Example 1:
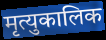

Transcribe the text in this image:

मृत्युकालिक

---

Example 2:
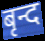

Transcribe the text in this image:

बृन्द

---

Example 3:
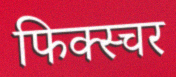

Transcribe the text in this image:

फिक्स्चर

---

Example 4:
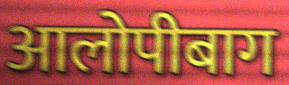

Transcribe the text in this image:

आलोपीबाग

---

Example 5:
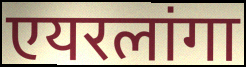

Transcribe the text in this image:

एयरलांगा